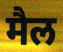
मैल